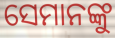
ସେମାନଙ୍କୁ